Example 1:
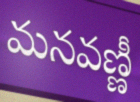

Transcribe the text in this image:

మనవణ్ణీ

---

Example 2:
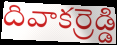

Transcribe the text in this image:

దివాకర్రెడ్డి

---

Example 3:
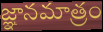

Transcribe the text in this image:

జ్ఞానమాత్రం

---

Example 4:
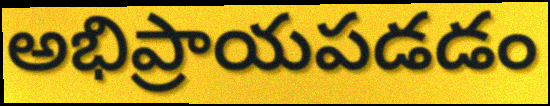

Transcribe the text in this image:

అభిప్రాయపడడం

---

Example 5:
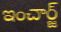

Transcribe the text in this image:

ఇంచార్జ్